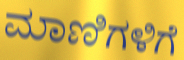
ಮಾಣಿಗಳಿಗೆ